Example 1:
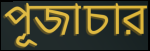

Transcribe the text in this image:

পূজাচার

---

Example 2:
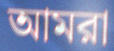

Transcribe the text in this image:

আমরা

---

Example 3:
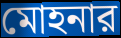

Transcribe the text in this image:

মোহনার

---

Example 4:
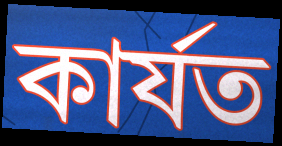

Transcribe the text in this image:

কার্যত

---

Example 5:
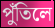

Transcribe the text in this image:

পুঁতিলে